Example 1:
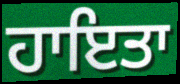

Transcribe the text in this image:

ਹਾਇਤਾ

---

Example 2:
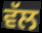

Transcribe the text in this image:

ਵੱਲ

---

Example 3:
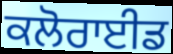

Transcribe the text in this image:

ਕਲੋਰਾਈਡ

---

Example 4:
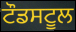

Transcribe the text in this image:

ਟੌਡਸਟੂਲ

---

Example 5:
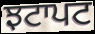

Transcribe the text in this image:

ਝਟਾਪਟ